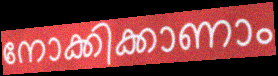
നോക്കിക്കാണാം